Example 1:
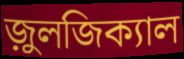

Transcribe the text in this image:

জ়ুলজিক্যাল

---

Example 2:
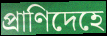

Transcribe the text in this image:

প্রাণিদেহে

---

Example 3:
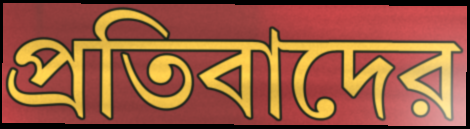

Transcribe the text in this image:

প্রতিবাদের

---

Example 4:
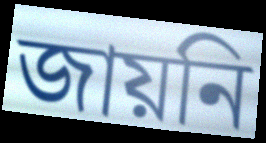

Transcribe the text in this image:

জায়নি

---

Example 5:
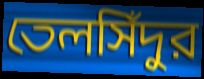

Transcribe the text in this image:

তেলসিঁদুর